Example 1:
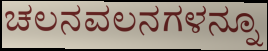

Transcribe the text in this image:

ಚಲನವಲನಗಳನ್ನೂ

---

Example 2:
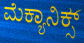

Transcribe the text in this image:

ಮೆಕ್ಯಾನಿಕ್ಸ್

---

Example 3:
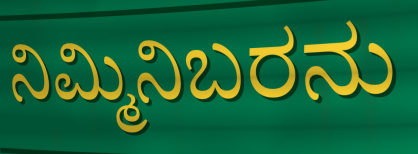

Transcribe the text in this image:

ನಿಮ್ಮಿನಿಬರನು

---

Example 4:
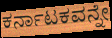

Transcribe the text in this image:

ಕರ್ನಾಟಕವನ್ನೇ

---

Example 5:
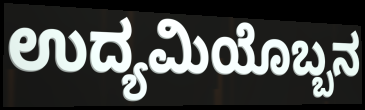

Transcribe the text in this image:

ಉದ್ಯಮಿಯೊಬ್ಬನ